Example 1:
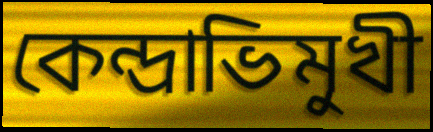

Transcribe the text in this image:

কেন্দ্রাভিমুখী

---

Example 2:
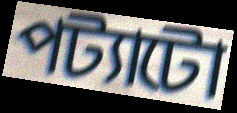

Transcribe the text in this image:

পট্যাটো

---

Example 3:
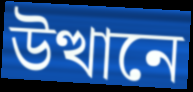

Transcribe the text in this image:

উত্থানে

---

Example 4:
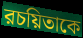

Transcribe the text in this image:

রচয়িতাকে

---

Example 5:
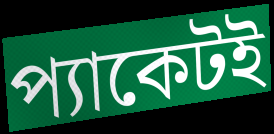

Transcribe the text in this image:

প্যাকেটই